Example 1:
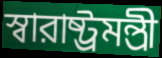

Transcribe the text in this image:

স্বারাষ্ট্রমন্ত্রী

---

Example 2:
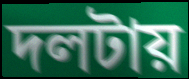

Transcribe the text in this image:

দলটায়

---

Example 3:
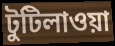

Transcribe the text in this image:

টুটিলাওয়া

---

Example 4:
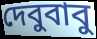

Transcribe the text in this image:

দেবুবাবু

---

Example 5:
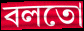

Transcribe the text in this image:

বলতো